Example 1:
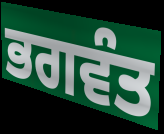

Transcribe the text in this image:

ਭਗਵੰਤ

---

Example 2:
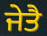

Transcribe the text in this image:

ਜੇਤੈ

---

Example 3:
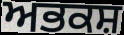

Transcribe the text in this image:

ਅਭਕਸ਼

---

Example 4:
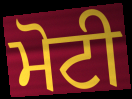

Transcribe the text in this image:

ਮੋਟੀ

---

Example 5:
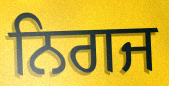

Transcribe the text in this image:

ਨਿਗਜ